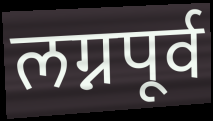
लग्नपूर्व